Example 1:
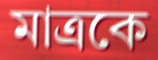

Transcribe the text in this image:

মাত্ৰকে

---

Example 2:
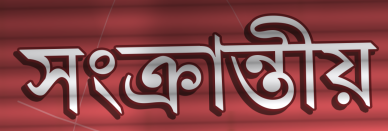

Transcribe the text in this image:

সংক্ৰান্তীয়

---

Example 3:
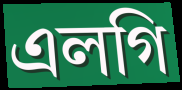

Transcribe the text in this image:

এলগি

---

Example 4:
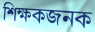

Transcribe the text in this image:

শিক্ষকজনক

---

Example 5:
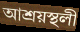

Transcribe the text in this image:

আশ্ৰয়স্থলী